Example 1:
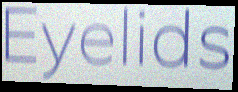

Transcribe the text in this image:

Eyelids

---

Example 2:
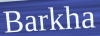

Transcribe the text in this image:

Barkha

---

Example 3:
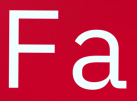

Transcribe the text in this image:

Fa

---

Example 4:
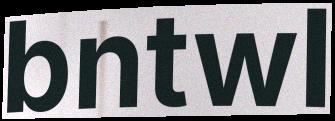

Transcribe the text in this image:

bntwl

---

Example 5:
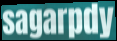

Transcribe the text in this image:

sagarpdy